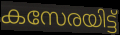
കസേരയിട്ട്